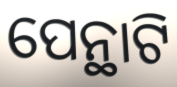
ପେନ୍ଥାଟି